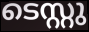
ടെസ്റ്റു